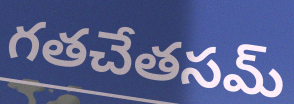
గతచేతసమ్